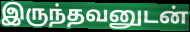
இருந்தவனுடன்